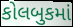
કોલબુકમાં